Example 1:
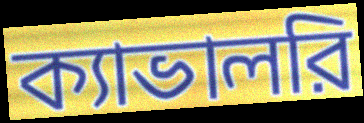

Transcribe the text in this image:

ক্যাভালরি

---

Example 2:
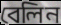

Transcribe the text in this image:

বেলিন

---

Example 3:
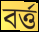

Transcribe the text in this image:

বর্ত্ত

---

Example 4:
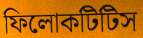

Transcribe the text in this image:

ফিলোকটিটিস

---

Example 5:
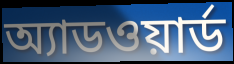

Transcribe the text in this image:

অ্যাডওয়ার্ড